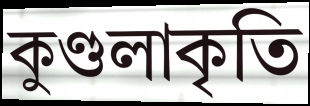
কুণ্ডলাকৃতি